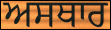
ਅਸਥਾਰ